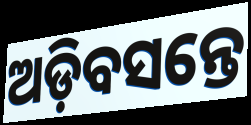
ଅଡ଼ିବସନ୍ତେ